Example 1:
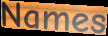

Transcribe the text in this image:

Names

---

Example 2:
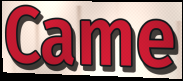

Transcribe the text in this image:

Came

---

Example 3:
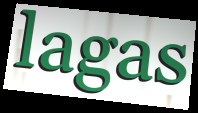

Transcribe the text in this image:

lagas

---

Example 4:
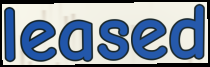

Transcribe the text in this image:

leased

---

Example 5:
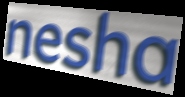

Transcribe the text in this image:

nesha